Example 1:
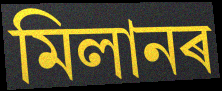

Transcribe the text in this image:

মিলানৰ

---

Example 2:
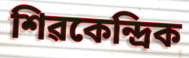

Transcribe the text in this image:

শিৱকেন্দ্ৰিক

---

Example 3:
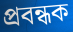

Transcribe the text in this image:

প্ৰবন্ধক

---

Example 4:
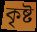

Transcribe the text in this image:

কৃষ্ট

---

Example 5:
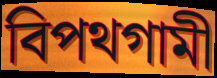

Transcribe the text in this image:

বিপথগামী